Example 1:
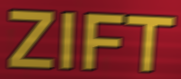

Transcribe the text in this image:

ZIFT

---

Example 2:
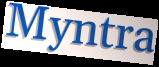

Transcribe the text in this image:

Myntra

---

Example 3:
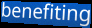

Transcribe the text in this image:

benefiting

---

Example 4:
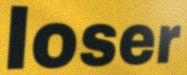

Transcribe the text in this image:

loser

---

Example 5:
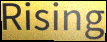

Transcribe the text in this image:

Rising